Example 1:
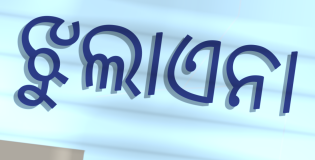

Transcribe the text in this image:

ଝୁଲାଏନା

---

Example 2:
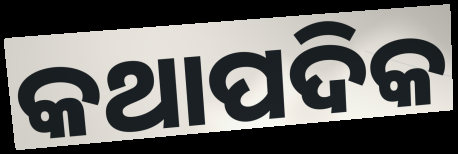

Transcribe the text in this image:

କଥାପଦିକ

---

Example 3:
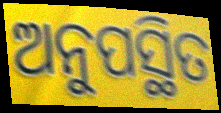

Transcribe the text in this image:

ଅନୁପସ୍ଥିତ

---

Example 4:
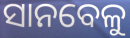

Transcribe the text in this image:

ସାନବେଳୁ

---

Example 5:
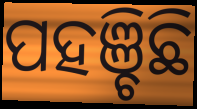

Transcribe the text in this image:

ପହଞ୍ଚିଛି